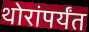
थोरांपर्यंत